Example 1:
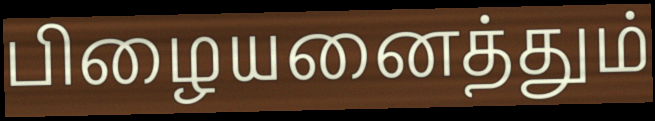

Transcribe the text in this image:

பிழையனைத்தும்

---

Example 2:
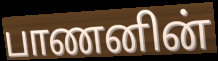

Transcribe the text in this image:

பாணனின்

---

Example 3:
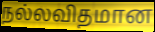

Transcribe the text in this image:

நல்லவிதமான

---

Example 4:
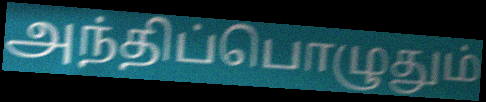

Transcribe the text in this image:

அந்திப்பொழுதும்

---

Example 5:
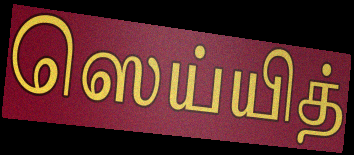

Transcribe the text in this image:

ஸெய்யித்